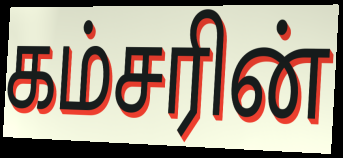
கம்சரின்